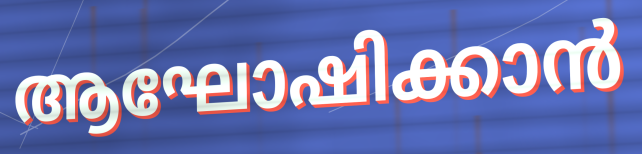
ആഘോഷിക്കാൻ